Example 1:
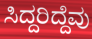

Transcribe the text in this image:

ಸಿದ್ದರಿದ್ದೆವು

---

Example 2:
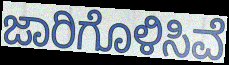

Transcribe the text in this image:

ಜಾರಿಗೊಳಿಸಿವೆ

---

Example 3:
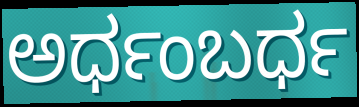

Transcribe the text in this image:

ಅರ್ಧಂಬರ್ಧ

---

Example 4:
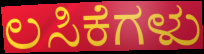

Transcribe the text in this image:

ಲಸಿಕೆಗಳು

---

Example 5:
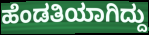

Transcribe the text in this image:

ಹೆಂಡತಿಯಾಗಿದ್ದು